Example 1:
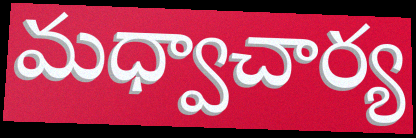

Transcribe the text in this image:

మధ్వాచార్య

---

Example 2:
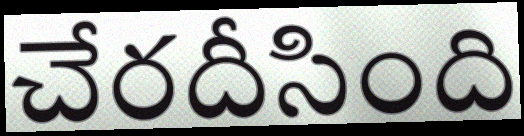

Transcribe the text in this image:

చేరదీసింది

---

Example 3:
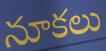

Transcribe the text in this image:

నూకలు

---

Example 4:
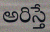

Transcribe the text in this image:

అరిస్తే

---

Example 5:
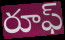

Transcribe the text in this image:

రూఫ్